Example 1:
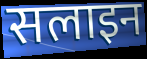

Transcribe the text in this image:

सलाइन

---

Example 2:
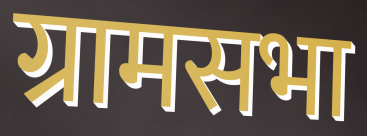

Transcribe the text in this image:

ग्रामसभा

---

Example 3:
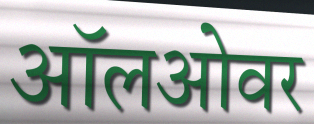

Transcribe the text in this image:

ऑलओवर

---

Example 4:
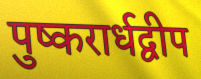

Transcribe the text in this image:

पुष्करार्धद्वीप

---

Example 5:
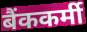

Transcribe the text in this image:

बैंककर्मी